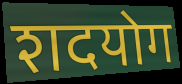
शदयोग